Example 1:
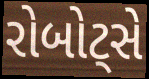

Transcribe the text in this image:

રોબોટ્સે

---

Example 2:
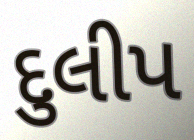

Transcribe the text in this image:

દુલીપ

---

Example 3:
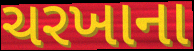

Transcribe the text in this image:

ચરખાના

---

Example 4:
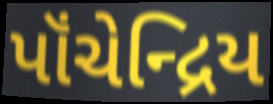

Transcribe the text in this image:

પૉંચેન્દ્રિય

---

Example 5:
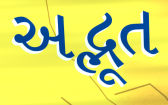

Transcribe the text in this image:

અદ્ભૂત